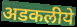
अडकलीये